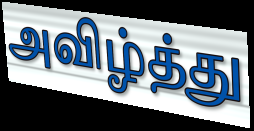
அவிழ்த்து